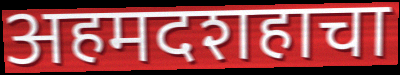
अहमदशहाचा